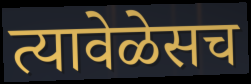
त्यावेळेसच